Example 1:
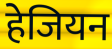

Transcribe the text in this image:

हेजियन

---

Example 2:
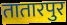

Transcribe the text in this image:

तातारपुर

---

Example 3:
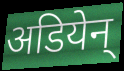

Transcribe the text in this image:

अडियेन्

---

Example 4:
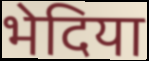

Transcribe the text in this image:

भेदिया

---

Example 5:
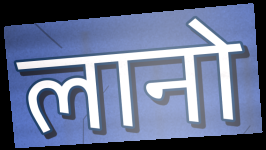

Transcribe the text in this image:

लानो